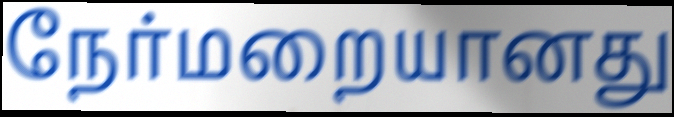
நேர்மறையானது